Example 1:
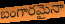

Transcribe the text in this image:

బంగారమైనా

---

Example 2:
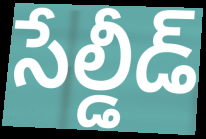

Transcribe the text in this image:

సేల్డీడ్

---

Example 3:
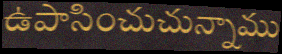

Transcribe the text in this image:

ఉపాసించుచున్నాము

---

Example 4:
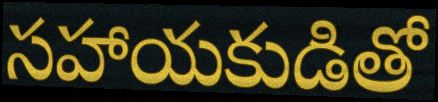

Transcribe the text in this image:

సహాయకుడితో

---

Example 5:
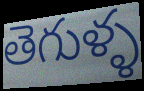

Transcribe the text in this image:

తెగుళ్ళ